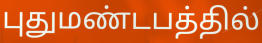
புதுமண்டபத்தில்